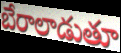
బేరాలాడుతూ